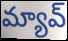
మ్యావ్